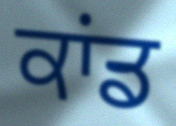
ਕਾਂਡ